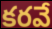
కరవే